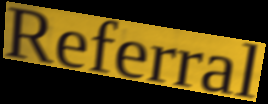
Referral